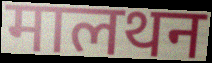
मालथन